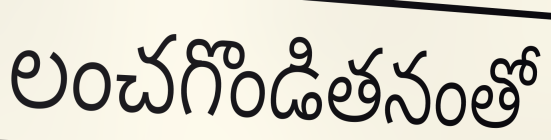
లంచగొండితనంతో